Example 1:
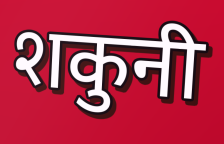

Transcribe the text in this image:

शकुनी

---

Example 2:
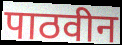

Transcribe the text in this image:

पाठवीन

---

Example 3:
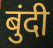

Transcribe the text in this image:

बुंदी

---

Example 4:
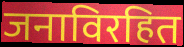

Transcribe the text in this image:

जनाविरहित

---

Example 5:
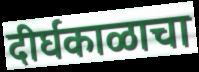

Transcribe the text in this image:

दीर्घकाळाचा